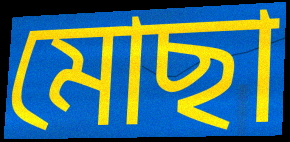
মোছা